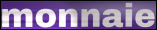
monnaie